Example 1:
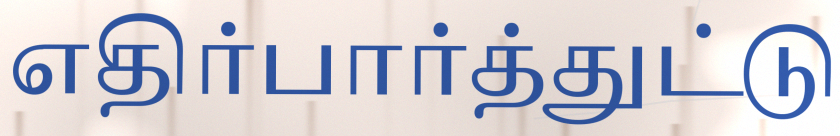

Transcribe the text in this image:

எதிர்பார்த்துட்டு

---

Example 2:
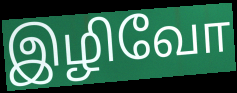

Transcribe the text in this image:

இழிவோ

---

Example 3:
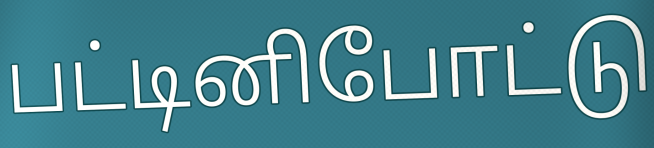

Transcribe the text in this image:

பட்டினிபோட்டு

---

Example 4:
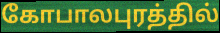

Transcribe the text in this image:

கோபாலபுரத்தில்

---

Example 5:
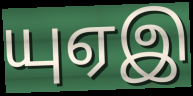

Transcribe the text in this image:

யுஏஇ